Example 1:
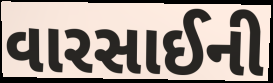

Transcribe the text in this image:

વારસાઈની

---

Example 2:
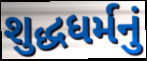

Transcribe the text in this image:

શુદ્ધધર્મનું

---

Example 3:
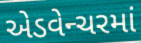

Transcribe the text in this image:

એડવેન્ચરમાં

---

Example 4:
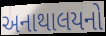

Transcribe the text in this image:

અનાથાલયનો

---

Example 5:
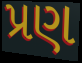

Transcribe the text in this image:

પ્રણ